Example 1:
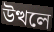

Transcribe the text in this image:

উত্থলে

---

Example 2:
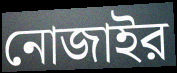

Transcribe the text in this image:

নোজাইর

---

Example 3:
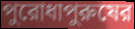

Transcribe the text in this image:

পুরোধাপুরুষের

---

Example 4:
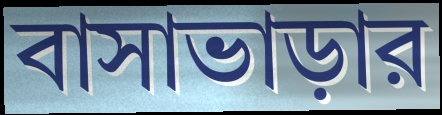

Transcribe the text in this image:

বাসাভাড়ার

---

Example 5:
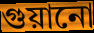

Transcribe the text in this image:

গুয়ানো